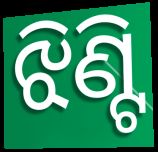
ଝିଣ୍ଟି